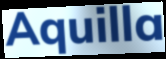
Aquilla